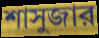
শাসুজার